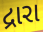
દ્રારા